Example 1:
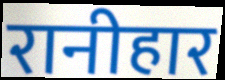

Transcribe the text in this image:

रानीहार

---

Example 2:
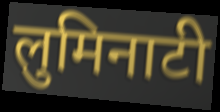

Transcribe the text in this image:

लुमिनाटी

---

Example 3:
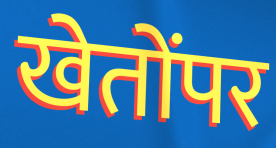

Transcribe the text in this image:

खेतोंपर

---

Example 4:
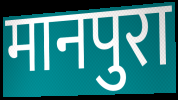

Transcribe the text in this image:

मानपुरा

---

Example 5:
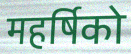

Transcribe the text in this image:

महर्षिको